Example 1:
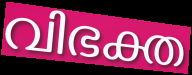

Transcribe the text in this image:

വിഭക്ത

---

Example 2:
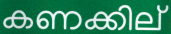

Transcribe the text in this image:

കണക്കില്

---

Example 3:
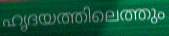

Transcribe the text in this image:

ഹൃദയത്തിലെത്തും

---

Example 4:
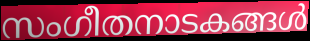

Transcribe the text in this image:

സംഗീതനാടകങ്ങൾ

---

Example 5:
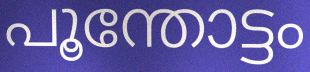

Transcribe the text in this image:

പൂന്തോട്ടം